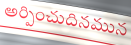
అర్పించుదినమున